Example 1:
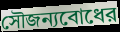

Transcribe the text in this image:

সৌজন্যবোধের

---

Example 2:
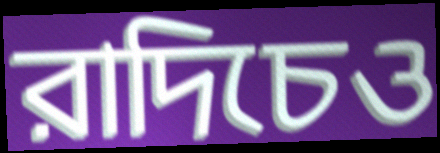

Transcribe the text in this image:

রাদিচেও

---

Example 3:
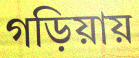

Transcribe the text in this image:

গড়িয়ায়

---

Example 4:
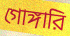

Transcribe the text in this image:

গোঙ্গারি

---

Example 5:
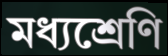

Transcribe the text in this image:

মধ্যশ্রেণি